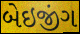
બેઇજીંગ